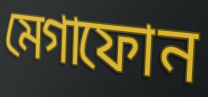
মেগাফোন